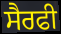
ਸੈਰਫੀ